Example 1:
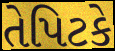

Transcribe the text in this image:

તેપિટકે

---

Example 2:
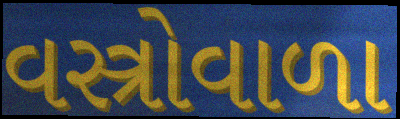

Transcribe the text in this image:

વસ્ત્રોવાળા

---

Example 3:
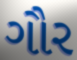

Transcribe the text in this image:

ગૌર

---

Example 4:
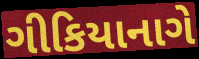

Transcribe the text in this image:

ગીકિયાનાગે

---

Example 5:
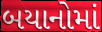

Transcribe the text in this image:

બયાનોમાં